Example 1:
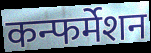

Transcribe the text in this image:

कन्‍फर्मेशन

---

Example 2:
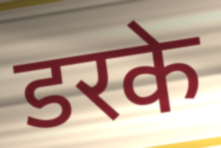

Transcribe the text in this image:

डरके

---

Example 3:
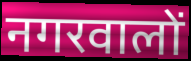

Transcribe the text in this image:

नगरवालों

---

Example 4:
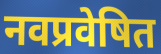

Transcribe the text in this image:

नवप्रवेषित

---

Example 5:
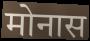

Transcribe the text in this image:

मोनास